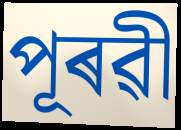
পূৰৱী